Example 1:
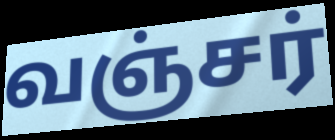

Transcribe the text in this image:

வஞ்சர்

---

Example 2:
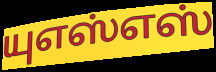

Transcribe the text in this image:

யுஎஸ்எஸ்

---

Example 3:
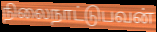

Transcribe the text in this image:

நிலைநாட்டுபவன்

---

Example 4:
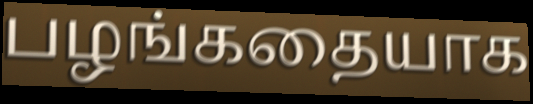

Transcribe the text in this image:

பழங்கதையாக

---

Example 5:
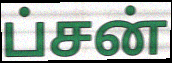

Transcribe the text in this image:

ப்சன்